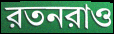
রতনরাও